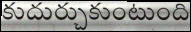
కుదుర్చుకుంటుంది